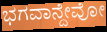
ಭಗವಾನ್ದೇವೋ